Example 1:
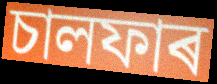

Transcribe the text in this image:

চালফাৰ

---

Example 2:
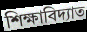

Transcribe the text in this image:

শিক্ষাবিদ্যাত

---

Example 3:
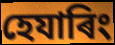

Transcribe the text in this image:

হেযাৰিং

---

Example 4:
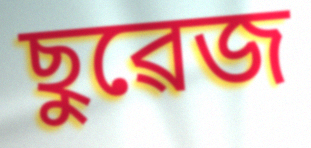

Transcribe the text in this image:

ছুৱেজ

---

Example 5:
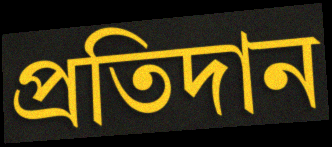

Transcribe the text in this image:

প্ৰতিদান